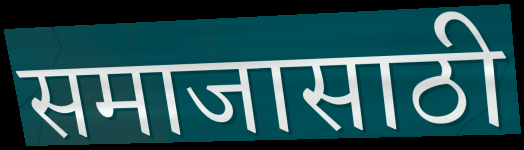
समाजासाठी